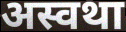
अस्वथा